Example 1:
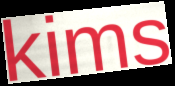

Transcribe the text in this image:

kims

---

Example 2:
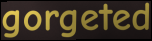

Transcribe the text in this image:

gorgeted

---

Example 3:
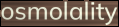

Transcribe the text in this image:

osmolality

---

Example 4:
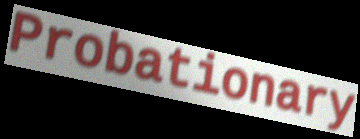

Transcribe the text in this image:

Probationary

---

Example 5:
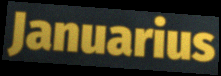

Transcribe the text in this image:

Januarius